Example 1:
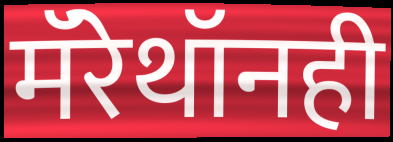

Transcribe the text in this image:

मॅरेथॉनही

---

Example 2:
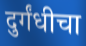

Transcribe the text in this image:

दुर्गंधीचा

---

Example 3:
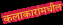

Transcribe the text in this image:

कलाकारांमधील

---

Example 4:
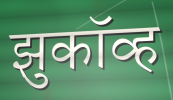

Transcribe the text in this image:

झुकॉव्ह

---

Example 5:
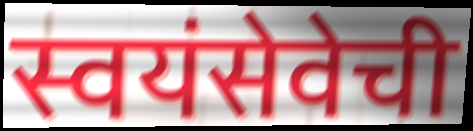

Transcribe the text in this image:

स्वयंसेवेची